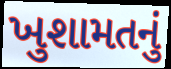
ખુશામતનું